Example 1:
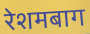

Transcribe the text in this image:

रेशमबाग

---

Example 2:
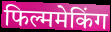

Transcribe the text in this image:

फिल्‍ममेकिंग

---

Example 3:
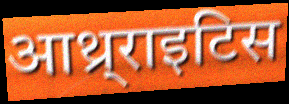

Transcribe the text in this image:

आथ्र्राइटिस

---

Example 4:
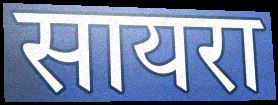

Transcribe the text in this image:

सायरा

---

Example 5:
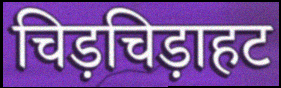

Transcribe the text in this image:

चिड़चिड़ाहट